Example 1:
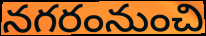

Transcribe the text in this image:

నగరంనుంచి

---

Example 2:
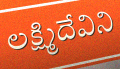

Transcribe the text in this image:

లక్ష్మిదేవిని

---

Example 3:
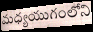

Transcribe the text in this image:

మధ్యయుగంలోని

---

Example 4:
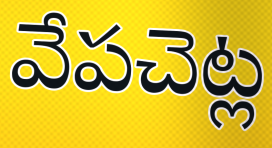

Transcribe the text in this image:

వేపచెట్ల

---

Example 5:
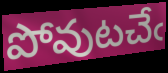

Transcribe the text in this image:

పోవుటచేఁ